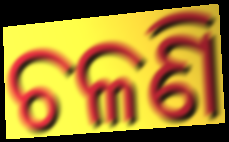
ଚଳଣି